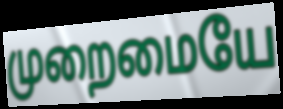
முறைமையே